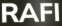
RAFI